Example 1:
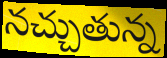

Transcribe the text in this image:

నచ్చుతున్న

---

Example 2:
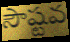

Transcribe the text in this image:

సౌష్టవ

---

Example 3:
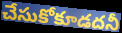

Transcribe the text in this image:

చేసుకోకూడదనీ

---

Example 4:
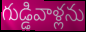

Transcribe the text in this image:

గుడ్డివాళ్లను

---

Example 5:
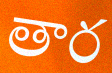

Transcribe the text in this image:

తార